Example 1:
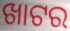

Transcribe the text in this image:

ଖାଟର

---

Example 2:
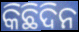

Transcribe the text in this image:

କିଛିଦିନ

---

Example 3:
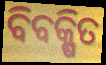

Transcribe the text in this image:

ବିବକ୍ଷିତ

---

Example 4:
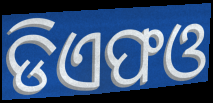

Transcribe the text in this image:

ଡିଏଫଓ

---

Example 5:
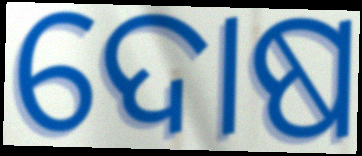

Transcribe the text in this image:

ଦୋଷ